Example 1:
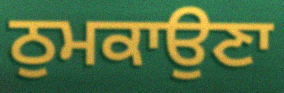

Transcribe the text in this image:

ਠੁਮਕਾਉਣਾ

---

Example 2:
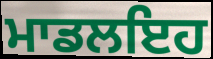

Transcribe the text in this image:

ਮਾਡਲਇਹ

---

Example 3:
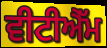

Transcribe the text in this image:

ਵੀਟੀਐੱਮ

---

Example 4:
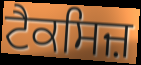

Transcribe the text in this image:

ਟੈਕਸਿਜ਼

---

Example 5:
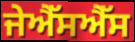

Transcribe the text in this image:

ਜੇਐੱਸਐੱਸ